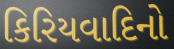
કિરિયવાદિનો